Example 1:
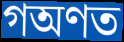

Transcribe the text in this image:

গঅণত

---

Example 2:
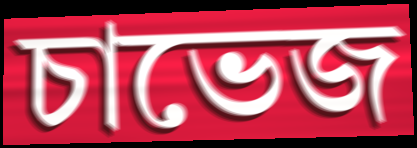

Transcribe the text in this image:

চাভেজ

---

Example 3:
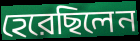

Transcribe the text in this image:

হেরেছিলেন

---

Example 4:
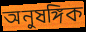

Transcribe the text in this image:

অনুষঙ্গিক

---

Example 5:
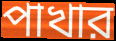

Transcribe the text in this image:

পাখার